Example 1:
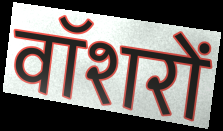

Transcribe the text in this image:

वॉशरों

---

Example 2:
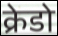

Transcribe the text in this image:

क्रेडो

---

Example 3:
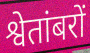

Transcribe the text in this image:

श्वेतांबरों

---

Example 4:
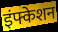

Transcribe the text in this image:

इंफ्केशन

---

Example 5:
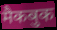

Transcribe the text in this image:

मैकबुक